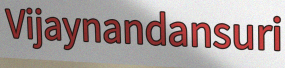
Vijaynandansuri